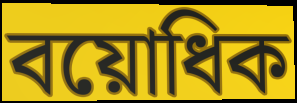
বয়োধিক